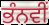
ਭੰਨਵੀਂ